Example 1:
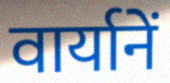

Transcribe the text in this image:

वार्यानें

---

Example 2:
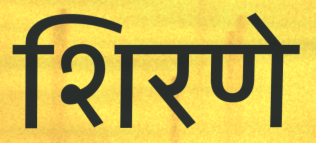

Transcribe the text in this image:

शिरणे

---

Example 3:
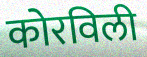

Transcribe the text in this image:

कोरविली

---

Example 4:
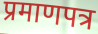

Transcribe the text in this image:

प्रमाणपत्र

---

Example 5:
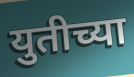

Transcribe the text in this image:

युतीच्या